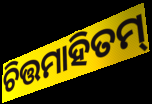
ଚିତ୍ତମାହିତମ୍